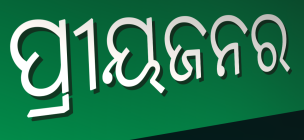
ପ୍ରୀୟଜନର